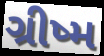
ગ્રીષ્મ